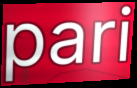
pari